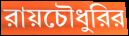
রায়চৌধুরির